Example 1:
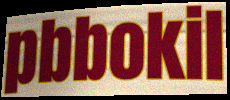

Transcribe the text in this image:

pbbokil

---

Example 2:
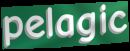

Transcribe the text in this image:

pelagic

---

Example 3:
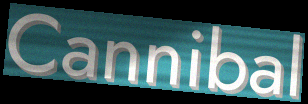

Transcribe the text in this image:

Cannibal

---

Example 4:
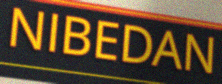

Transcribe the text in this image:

NIBEDAN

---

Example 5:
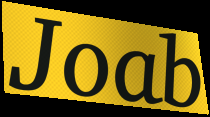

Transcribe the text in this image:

Joab